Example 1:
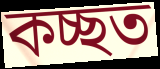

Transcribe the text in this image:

কচ্ছত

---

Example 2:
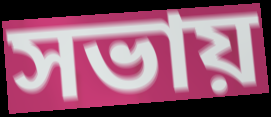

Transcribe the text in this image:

সভায়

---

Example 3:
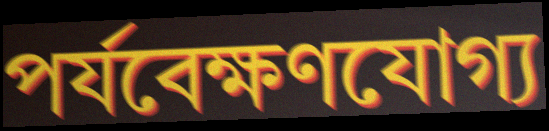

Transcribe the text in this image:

পৰ্যবেক্ষণযোগ্য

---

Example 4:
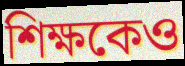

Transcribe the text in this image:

শিক্ষকেও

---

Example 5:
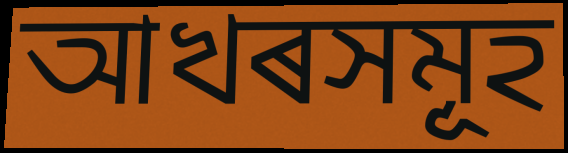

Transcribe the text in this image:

আখৰসমূহ